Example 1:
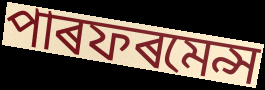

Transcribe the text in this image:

পাৰফৰমেন্স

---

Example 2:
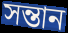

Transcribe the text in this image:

সন্তান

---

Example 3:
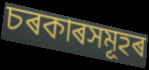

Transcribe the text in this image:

চৰকাৰসমূহৰ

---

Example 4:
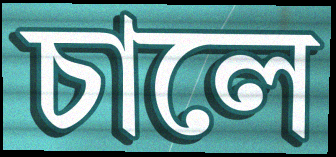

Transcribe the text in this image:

চালে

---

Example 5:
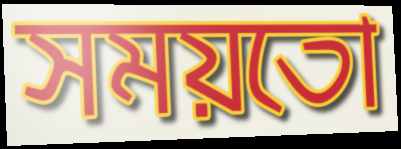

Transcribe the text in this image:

সময়তো